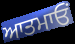
ਆਤਮਾਓਂ